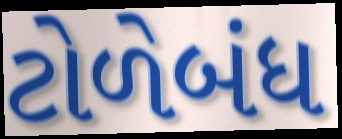
ટોળેબંધ